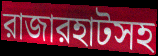
রাজারহাটসহ